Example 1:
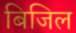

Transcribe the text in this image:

बिजिल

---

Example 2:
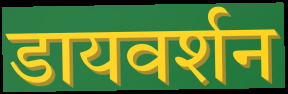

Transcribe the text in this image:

डायवर्शन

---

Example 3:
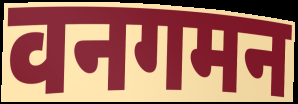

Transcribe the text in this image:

वनगमन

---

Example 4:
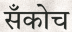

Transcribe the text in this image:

सँकोच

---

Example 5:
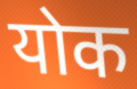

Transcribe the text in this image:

योक